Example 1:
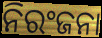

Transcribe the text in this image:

ନିରଂଜନା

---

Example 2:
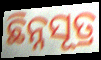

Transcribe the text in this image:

ଛିନ୍ନସୂତ୍ର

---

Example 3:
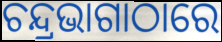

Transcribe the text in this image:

ଚନ୍ଦ୍ରଭାଗାଠାରେ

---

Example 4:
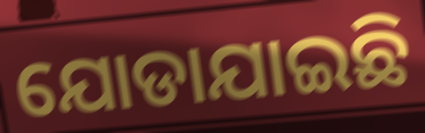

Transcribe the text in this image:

ଯୋଡାଯାଇଛି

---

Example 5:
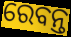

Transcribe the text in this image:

ରେବନ୍ତ